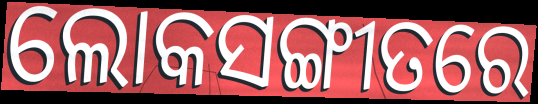
ଲୋକସଙ୍ଗୀତରେ